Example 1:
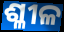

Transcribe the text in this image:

ଶ୍ଳୀଳ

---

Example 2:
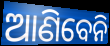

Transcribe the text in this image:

ଆଣିବେନି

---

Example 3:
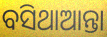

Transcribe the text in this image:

ବସିଥାଆନ୍ତା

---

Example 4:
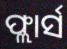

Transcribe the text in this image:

ଫ୍ଲାର୍ସ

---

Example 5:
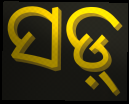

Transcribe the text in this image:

ସଡ଼୍